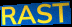
RAST